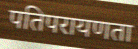
पतिपरायणता